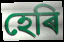
হেৰি